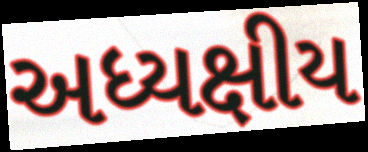
અધ્યક્ષીય